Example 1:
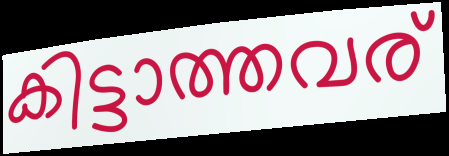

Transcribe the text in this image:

കിട്ടാത്തവര്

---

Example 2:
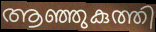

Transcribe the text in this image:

ആഞ്ഞുകുത്തി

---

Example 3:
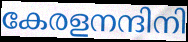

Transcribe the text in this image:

കേരളനന്ദിനി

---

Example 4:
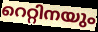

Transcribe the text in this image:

റെറ്റിനയും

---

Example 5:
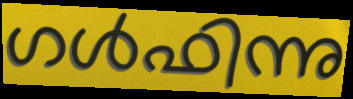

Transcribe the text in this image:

ഗൾഫിന്നു